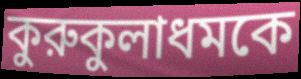
কুরুকুলাধমকে